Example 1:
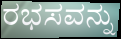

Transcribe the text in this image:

ರಭಸವನ್ನು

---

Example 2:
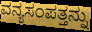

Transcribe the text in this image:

ವನ್ಯಸಂಪತ್ತನ್ನು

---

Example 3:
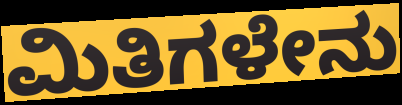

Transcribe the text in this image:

ಮಿತಿಗಳೇನು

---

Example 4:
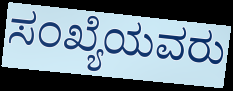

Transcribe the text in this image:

ಸಂಖ್ಯೆಯವರು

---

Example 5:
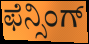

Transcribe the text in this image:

ಫೆನ್ಸಿಂಗ್